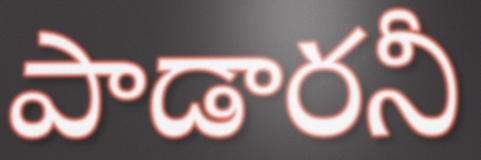
పాడారనీ